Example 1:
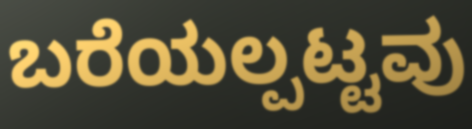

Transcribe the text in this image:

ಬರೆಯಲ್ಪಟ್ಟವು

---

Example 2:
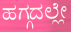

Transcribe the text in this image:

ಹಗ್ಗದಲ್ಲೇ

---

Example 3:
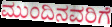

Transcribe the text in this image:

ಮುಂದಿನವರಿಗೆ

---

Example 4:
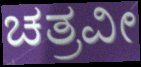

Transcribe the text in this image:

ಚತ್ರವೀ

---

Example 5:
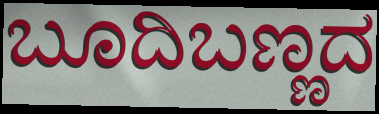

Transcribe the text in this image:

ಬೂದಿಬಣ್ಣದ